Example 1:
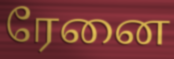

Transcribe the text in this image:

ரேனை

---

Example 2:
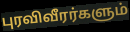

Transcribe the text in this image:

புரவிவீரர்களும்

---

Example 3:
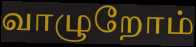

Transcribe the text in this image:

வாழுறோம்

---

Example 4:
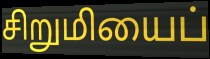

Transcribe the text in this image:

சிறுமியைப்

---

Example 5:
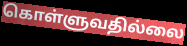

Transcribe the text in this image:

கொள்ளுவதில்லை